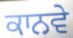
ਕਾਨਵੇ